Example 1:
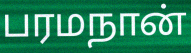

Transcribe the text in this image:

பரமநான்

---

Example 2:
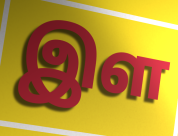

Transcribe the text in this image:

இள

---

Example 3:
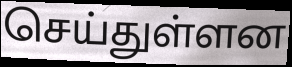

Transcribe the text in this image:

செய்துள்ளன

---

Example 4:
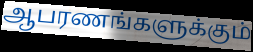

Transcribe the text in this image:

ஆபரணங்களுக்கும்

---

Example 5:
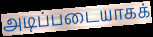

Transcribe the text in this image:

அடிப்படையாகக்